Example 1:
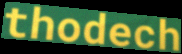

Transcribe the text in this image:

thodech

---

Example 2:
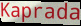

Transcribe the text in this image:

Kaprada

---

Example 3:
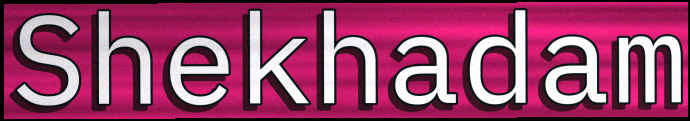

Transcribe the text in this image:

Shekhadam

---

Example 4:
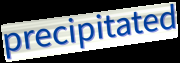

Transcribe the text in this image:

precipitated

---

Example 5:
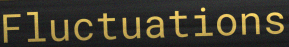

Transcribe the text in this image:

Fluctuations